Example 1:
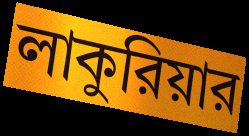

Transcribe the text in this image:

লাকুরিয়ার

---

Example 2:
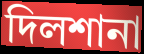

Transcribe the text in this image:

দিলশানা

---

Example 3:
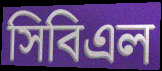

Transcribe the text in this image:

সিবিএল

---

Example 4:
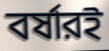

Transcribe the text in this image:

বর্ষারই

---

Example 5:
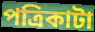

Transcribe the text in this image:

পত্রিকাটা